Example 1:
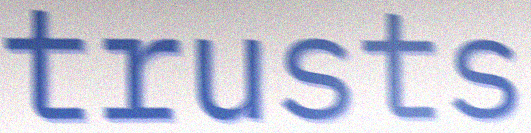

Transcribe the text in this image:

trusts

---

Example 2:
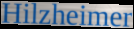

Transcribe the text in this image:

Hilzheimer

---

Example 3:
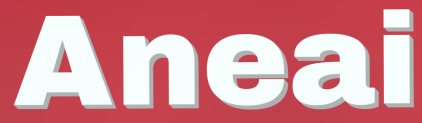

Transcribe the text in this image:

Aneai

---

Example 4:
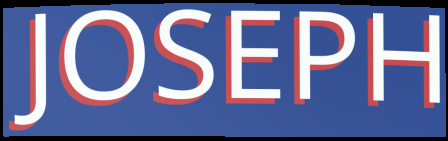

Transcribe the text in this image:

JOSEPH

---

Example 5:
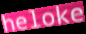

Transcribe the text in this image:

heloke